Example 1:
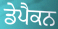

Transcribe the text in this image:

ਡੇਪੈਕਨ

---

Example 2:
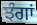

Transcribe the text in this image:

ਝੰਗਾਂ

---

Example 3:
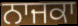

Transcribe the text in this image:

ਨਾਜਕਾ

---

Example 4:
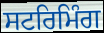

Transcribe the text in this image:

ਸਟਰਿਮਿੰਗ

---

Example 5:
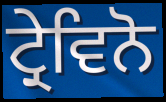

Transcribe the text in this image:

ਟ੍ਰੇਵਿਨੋ